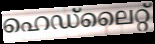
ഹെഡ്ലൈറ്റ്